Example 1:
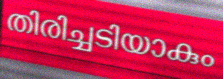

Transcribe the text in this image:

തിരിച്ചടിയാകും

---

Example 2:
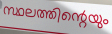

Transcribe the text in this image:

സ്ഥലത്തിന്റെയും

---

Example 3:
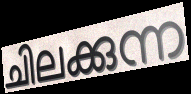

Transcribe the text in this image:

ചിലക്കുന്ന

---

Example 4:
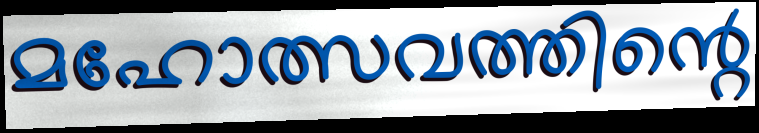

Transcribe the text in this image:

മഹോത്സവത്തിന്റെ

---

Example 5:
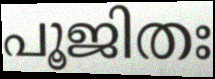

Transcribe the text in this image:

പൂജിതഃ